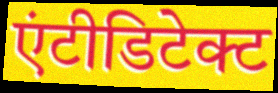
एंटीडिटेक्ट